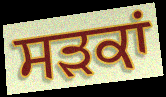
ਸਡ਼ਕਾਂ